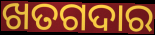
ଖତଗଦାର